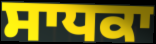
ਸਾਧਕਾ